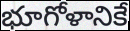
భూగోళానికే